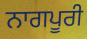
ਨਾਗਪੂਰੀ